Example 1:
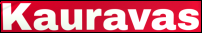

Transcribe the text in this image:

Kauravas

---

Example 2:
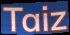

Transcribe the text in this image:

Taiz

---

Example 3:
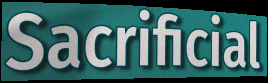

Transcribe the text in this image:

Sacrificial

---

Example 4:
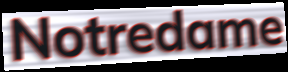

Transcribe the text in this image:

Notredame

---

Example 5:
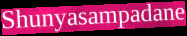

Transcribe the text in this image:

Shunyasampadane